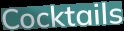
Cocktails